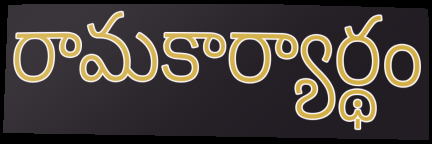
రామకార్యార్థం